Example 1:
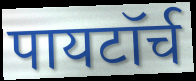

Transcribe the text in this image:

पायटॉर्च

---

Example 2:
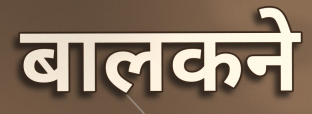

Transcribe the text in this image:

बालकने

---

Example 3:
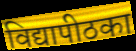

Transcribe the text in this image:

विद्यापीठका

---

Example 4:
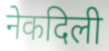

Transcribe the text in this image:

नेकदिली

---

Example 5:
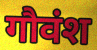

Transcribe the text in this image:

गौवंश